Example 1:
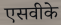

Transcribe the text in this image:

एसवीके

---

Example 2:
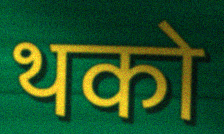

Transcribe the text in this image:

थको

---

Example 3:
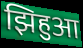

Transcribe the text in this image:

झिहुआ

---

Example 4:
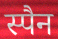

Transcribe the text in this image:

स्पैन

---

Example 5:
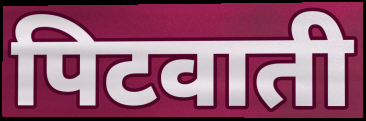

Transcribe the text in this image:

पिटवाती